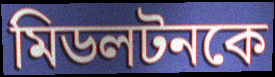
মিডলটনকে